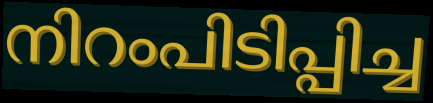
നിറംപിടിപ്പിച്ച